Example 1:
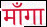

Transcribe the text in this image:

माँगा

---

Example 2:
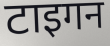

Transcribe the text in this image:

टाइगन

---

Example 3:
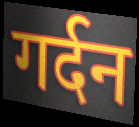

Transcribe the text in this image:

गर्दन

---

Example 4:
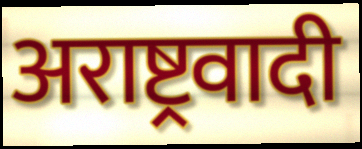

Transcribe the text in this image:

अराष्ट्रवादी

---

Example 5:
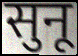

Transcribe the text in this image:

सुनू